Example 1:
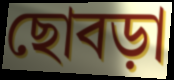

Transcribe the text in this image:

ছোবড়া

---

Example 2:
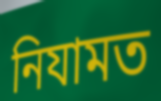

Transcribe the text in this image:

নিযামত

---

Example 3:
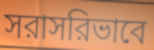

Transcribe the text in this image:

সরাসরিভাবে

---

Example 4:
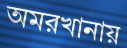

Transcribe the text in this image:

অমরখানায়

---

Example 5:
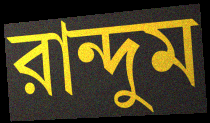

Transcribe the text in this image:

রান্দুম